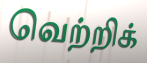
வெற்றிக்